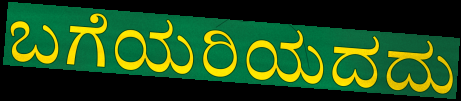
ಬಗೆಯರಿಯದದು